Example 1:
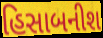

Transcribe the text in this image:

હિસાબનીશ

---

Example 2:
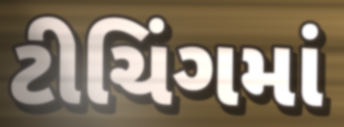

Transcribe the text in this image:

ટીચિંગમાં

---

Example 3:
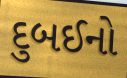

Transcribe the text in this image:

દુબઈનો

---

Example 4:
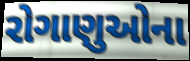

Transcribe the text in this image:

રોગાણુઓના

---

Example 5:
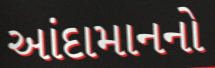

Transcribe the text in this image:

આંદામાનનો